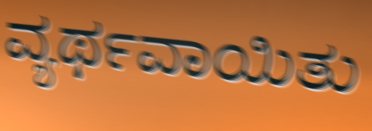
ವ್ಯರ್ಥವಾಯಿತು